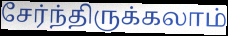
சேர்ந்திருக்கலாம்